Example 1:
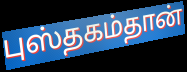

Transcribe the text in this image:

புஸ்தகம்தான்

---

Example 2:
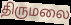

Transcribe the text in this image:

திருமலை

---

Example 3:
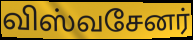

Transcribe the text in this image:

விஸ்வசேனர்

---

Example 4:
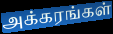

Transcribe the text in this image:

அக்கரங்கள்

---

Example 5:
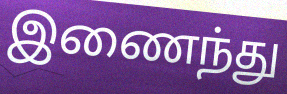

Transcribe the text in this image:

இணைந்து